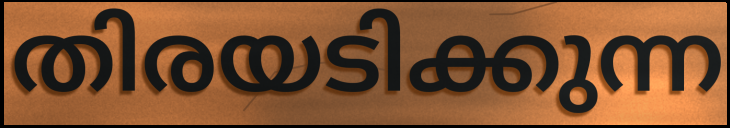
തിരയടിക്കുന്ന